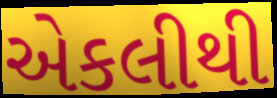
એકલીથી